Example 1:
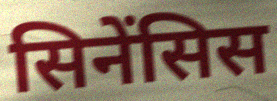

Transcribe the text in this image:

सिनेंसिस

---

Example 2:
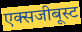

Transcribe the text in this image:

एक्सजीबूस्ट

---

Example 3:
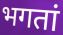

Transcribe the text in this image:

भगतां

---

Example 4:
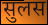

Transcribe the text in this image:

सुलस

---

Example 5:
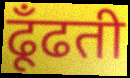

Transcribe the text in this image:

ढूँढती